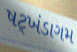
ષટ્ખંડાગમ